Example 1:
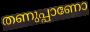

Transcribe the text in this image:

തണുപ്പാണോ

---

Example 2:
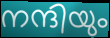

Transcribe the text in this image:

നന്ദിയും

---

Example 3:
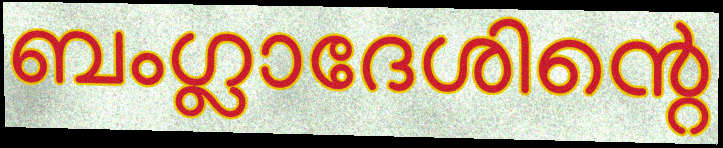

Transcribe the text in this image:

ബംഗ്ലാദേശിന്റെ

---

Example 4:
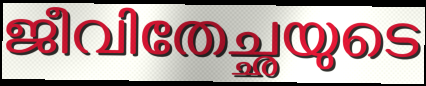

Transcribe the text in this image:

ജീവിതേച്ഛയുടെ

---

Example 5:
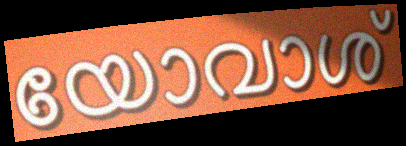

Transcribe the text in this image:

യോവാശ്